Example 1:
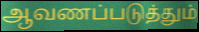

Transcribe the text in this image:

ஆவணப்படுத்தும்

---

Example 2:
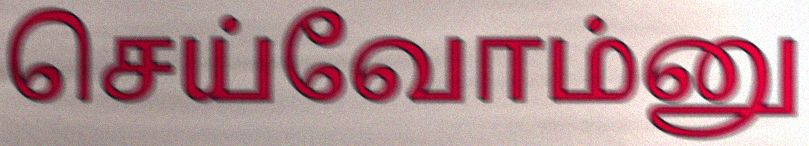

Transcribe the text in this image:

செய்வோம்னு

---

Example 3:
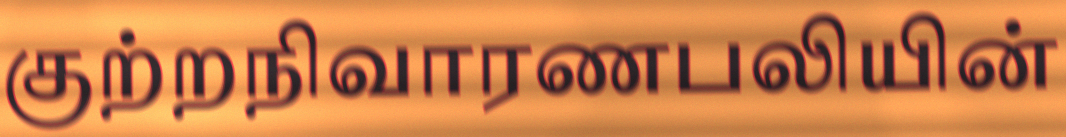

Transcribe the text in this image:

குற்றநிவாரணபலியின்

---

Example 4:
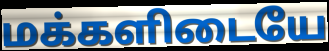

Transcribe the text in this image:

மக்களிடையே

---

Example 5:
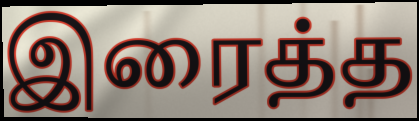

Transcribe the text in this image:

இரைத்த